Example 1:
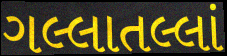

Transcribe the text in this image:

ગલ્લાતલ્લાં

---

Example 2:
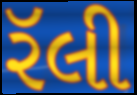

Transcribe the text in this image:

રૅલી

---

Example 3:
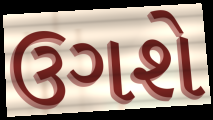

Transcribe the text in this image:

ઉગશે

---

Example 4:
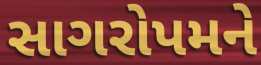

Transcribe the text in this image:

સાગરોપમને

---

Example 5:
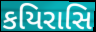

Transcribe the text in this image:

કયિરાસિ